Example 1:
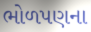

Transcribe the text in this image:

ભોળપણના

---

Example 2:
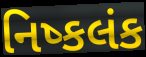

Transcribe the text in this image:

નિષ્કલંક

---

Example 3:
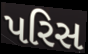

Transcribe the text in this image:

પરિસ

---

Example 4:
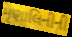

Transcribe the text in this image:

મૃણાલિનીની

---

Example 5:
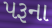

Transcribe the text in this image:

પરૂના